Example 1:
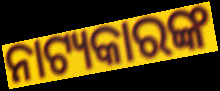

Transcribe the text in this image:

ନାଟ୍ୟକାରଙ୍କ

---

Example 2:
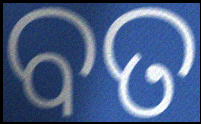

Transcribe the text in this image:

ବତ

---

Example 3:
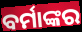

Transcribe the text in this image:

ବର୍ମାଙ୍କର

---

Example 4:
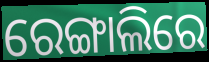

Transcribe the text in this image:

ରେଙ୍ଗାଲିରେ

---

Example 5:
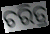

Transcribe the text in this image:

ଚରିତ୍ର